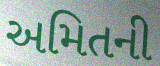
અમિતની